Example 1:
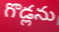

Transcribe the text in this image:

గొడ్లను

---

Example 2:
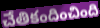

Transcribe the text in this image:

చేతికందించింది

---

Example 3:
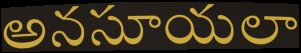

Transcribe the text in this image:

అనసూయలా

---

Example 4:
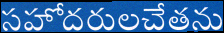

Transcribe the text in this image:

సహోదరులచేతను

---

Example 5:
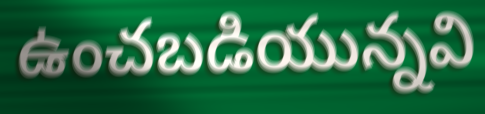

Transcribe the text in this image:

ఉంచబడియున్నవి